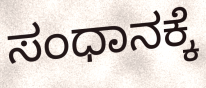
ಸಂಧಾನಕ್ಕೆ